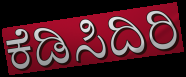
ಕೆಡಿಸಿದಿರಿ